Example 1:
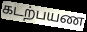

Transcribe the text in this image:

கடற்பயண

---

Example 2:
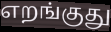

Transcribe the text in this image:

எறங்குது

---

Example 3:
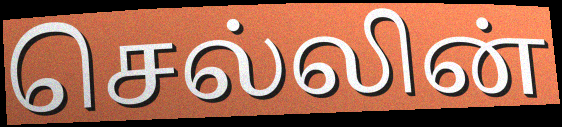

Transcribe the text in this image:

செல்லின்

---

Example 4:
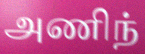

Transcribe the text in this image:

அணிந்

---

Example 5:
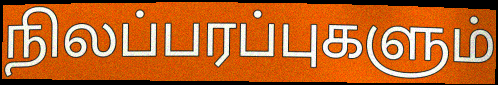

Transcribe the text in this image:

நிலப்பரப்புகளும்